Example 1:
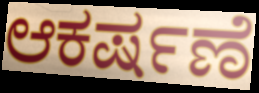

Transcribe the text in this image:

ಆಕರ್ಷಣೆ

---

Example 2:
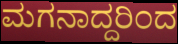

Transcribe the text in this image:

ಮಗನಾದ್ದರಿಂದ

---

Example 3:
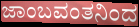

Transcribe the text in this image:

ಜಾಂಬವಂತನಿಂದ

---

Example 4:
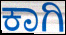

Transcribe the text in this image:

ಕಾಗಿ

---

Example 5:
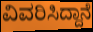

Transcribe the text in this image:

ವಿವರಿಸಿದ್ದಾನೆ